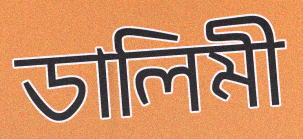
ডালিমী